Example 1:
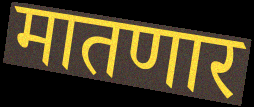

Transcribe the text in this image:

मातणार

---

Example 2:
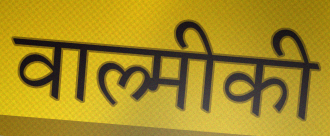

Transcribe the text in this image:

वाल्मीकी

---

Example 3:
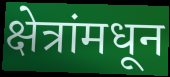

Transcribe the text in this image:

क्षेत्रांमधून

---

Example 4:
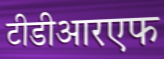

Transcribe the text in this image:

टीडीआरएफ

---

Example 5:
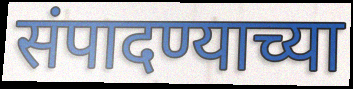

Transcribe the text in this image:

संपादण्याच्या